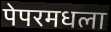
पेपरमधला